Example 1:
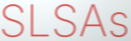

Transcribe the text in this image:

SLSAs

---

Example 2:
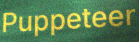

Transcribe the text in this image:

Puppeteer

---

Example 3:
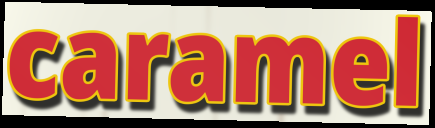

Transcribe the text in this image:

caramel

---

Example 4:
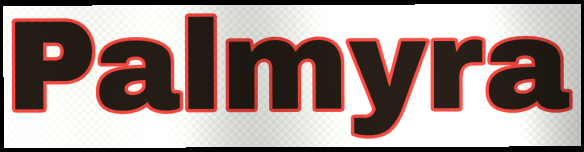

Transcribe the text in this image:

Palmyra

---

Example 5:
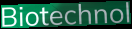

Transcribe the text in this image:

Biotechnol